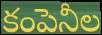
కంపెనీల